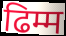
ढिम्म